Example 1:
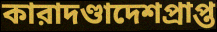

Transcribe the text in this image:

কারাদণ্ডাদেশপ্রাপ্ত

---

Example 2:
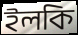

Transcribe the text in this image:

ইলকি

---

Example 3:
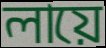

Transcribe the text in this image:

লায়ে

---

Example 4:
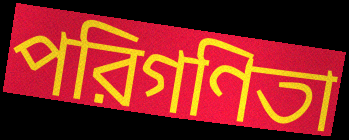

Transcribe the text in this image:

পরিগণিতা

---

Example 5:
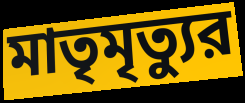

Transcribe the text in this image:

মাতৃমৃত্যুর